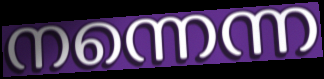
നന്നെന്ന